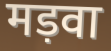
मड़वा